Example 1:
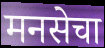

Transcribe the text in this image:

मनसेचा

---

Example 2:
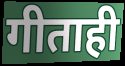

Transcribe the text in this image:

गीताही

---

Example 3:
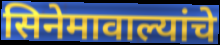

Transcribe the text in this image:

सिनेमावाल्यांचे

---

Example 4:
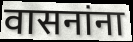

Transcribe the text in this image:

वासनांना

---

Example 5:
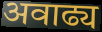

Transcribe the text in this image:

अवाढ्य